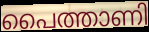
പൈത്താണി